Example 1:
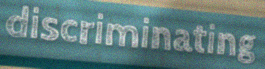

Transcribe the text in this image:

discriminating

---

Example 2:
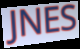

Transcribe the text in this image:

JNES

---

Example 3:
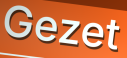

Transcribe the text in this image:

Gezet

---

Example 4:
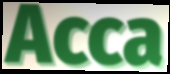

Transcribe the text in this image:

Acca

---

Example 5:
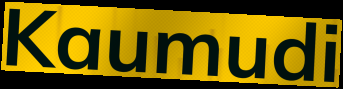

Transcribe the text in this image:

Kaumudi